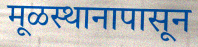
मूळस्थानापासून